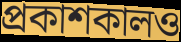
প্রকাশকালও